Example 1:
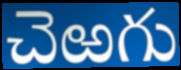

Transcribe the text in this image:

చెఱగు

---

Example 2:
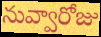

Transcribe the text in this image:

నువ్వారోజు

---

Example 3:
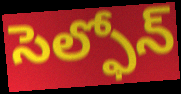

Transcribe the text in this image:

సెల్ఫోన్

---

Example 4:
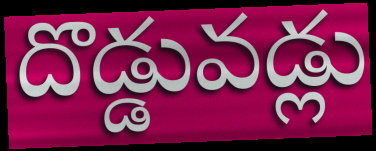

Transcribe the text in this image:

దొడ్డువడ్లు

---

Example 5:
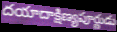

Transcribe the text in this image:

దయాదాక్షిణ్యపూర్ణుడు